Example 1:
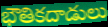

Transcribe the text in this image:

భౌతికదాడులు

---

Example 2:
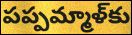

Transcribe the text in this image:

పప్పమ్మాళ్‌కు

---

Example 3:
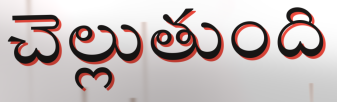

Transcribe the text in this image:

చెల్లుతుంది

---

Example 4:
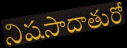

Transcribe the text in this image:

నిషసాదాతురో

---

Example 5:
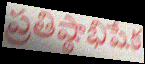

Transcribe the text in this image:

ప్రతిష్ఠాభిషేక